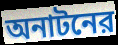
অনাটনের